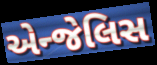
એન્જેલિસ